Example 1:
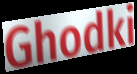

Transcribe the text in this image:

Ghodki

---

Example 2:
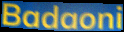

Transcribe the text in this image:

Badaoni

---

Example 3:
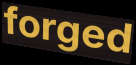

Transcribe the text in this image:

forged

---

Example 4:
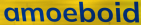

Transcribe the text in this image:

amoeboid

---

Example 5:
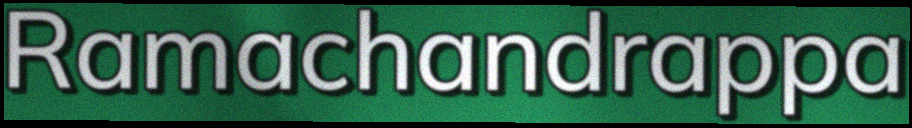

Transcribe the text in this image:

Ramachandrappa